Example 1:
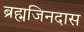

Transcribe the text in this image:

ब्रह्मजिनदास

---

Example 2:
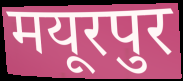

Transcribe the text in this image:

मयूरपुर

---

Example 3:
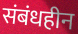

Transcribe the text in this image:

संबंधहीन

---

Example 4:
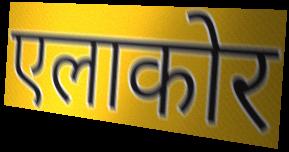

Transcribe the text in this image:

एलाकोर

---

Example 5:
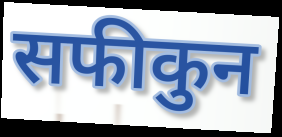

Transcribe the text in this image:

सफीकुन